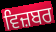
ਵਿਜ਼ਬਰ